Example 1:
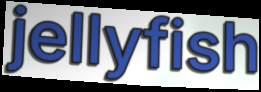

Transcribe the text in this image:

jellyfish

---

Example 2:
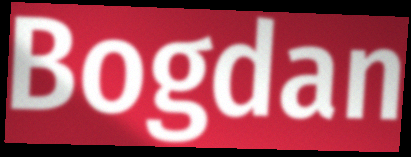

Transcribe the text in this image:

Bogdan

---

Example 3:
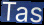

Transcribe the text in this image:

Tas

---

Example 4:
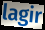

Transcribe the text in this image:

lagir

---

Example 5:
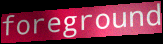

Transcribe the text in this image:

foreground